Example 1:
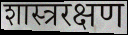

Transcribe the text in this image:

शास्त्ररक्षण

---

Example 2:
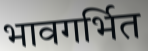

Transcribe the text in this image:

भावगर्भित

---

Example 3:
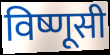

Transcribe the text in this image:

विष्णूसी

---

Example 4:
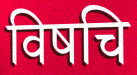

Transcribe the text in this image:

विषचि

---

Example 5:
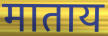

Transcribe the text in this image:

माताय